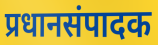
प्रधानसंपादक